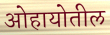
ओहायोतील